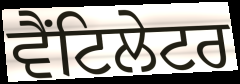
ਵੈਂਟਿਲੇਟਰ